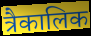
त्रैकालिक